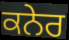
ਕਨੇਰ